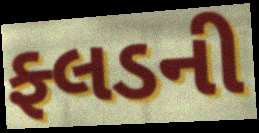
ફ્લડની